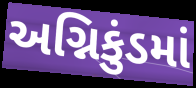
અગ્નિકુંડમાં